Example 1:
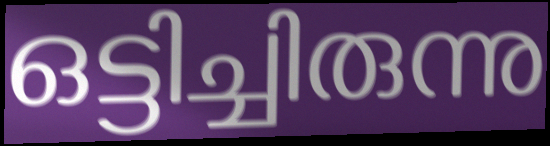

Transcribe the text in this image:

ഒട്ടിച്ചിരുന്നു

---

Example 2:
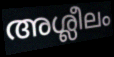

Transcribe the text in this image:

അശ്ലീലം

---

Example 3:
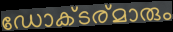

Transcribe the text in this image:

ഡോക്ടര്മാരും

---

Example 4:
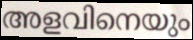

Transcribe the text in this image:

അളവിനെയും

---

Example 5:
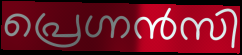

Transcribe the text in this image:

പ്രെഗ്നൻസി